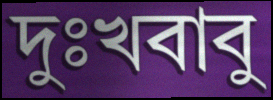
দুঃখবাবু